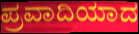
ಪ್ರವಾದಿಯಾದ